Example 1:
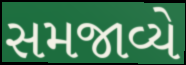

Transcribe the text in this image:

સમજાવ્યે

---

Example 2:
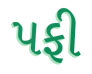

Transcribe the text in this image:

પફી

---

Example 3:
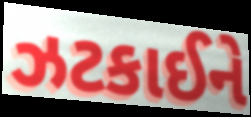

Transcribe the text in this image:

ઝટકાઈને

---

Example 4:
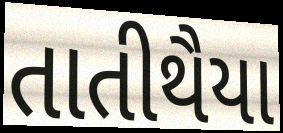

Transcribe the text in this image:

તાતીથૈયા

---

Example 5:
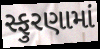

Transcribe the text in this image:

સ્ફુરણામાં